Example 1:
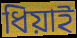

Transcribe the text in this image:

ধিয়াই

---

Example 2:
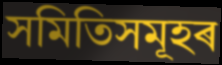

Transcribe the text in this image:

সমিতিসমূহৰ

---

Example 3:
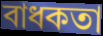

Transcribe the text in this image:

বাধকতা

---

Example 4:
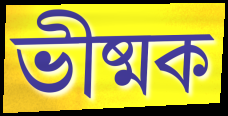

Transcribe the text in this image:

ভীষ্মক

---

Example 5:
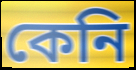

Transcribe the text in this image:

কেনি